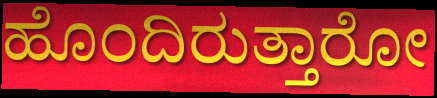
ಹೊಂದಿರುತ್ತಾರೋ